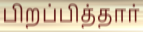
பிறப்பித்தார்